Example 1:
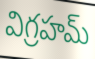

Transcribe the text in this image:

విగ్రహమ్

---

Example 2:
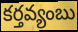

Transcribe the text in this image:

కర్తవ్యంబు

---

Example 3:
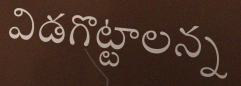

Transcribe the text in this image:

విడగొట్టాలన్న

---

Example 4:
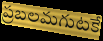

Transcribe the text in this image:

ప్రబలమగుటకే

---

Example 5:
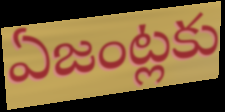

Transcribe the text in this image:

ఏజంట్లకు